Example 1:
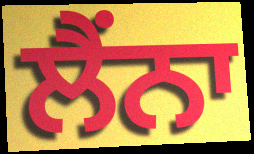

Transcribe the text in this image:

ਲੈਂਨਾ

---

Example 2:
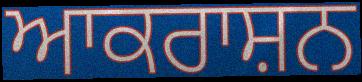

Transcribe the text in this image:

ਆਕਰਾਸ਼ਨ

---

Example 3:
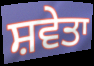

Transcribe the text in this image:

ਸ਼ਵੇਤਾ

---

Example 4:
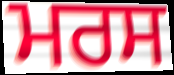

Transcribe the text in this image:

ਮਰਸ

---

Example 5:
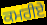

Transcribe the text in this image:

ਕਮਰੀਏ